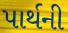
પાર્થની